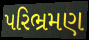
પરિભ્રમણ